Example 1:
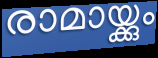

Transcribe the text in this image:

രാമായ്ക്കും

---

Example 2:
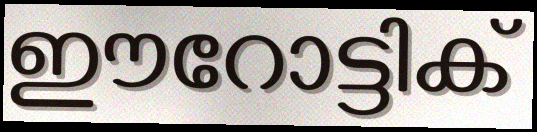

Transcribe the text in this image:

ഈറോട്ടിക്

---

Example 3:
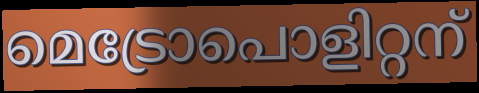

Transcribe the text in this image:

മെട്രോപൊളിറ്റന്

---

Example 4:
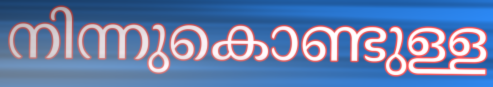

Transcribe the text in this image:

നിന്നുകൊണ്ടുള്ള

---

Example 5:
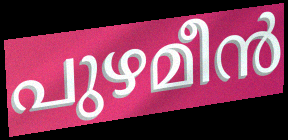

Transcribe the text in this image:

പുഴമീൻ